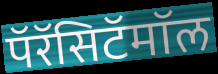
पॅरॅसिटॅमॉल